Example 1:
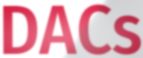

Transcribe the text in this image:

DACs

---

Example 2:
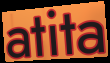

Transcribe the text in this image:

atita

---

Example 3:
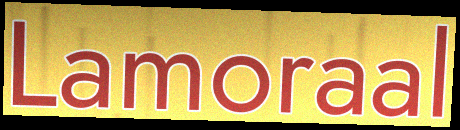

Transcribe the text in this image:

Lamoraal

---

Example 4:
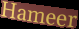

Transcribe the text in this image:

Hameer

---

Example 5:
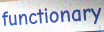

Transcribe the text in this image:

functionary